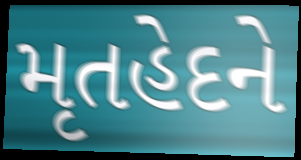
મૃતહેદને